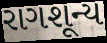
રાગશૂન્ય